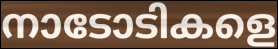
നാടോടികളെ